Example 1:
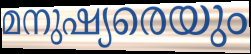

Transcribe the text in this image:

മനുഷ്യരെയും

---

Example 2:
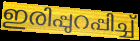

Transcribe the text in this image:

ഇരിപ്പുറപ്പിച്ച്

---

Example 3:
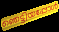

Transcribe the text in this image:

ഞെട്ടിയപ്പോൾ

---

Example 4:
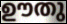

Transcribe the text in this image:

ഊതു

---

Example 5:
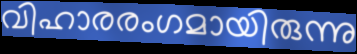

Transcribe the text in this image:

വിഹാരരംഗമായിരുന്നു